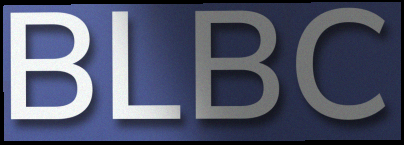
BLBC